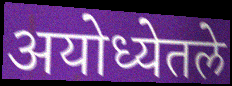
अयोध्येतले